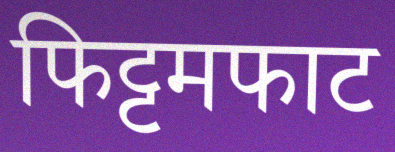
फिट्टमफाट